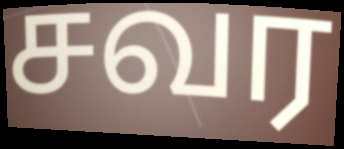
சவர